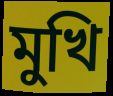
মুখি